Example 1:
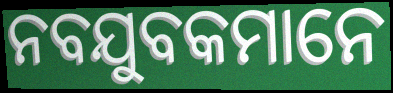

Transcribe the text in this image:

ନବଯୁବକମାନେ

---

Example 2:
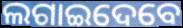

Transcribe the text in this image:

ଲଗାଇଦେବେ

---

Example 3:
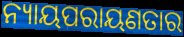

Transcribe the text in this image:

ନ୍ୟାୟପରାୟଣତାର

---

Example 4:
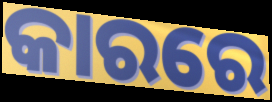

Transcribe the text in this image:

କାରରେ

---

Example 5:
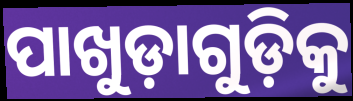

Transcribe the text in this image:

ପାଖୁଡ଼ାଗୁଡ଼ିକୁ